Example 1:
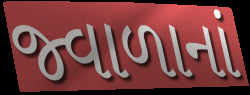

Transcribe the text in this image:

જ્વાળાનાં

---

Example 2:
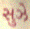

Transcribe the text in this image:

સુઝે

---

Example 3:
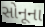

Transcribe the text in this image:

સોનૂના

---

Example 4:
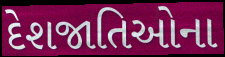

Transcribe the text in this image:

દેશજાતિઓના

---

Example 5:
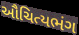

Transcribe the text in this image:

ઔચિત્યભંગ